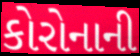
કોરોનાની